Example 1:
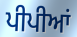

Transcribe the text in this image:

ਪੀਪੀਆਂ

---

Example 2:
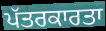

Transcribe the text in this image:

ਪੱਤਰਕਾਰਤਾ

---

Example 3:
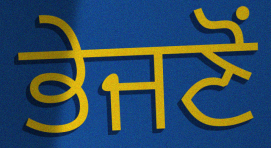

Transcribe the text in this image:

ਭੇਜਣੋਂ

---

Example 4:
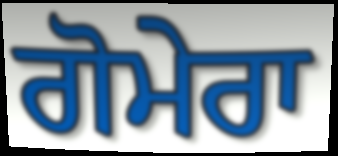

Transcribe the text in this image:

ਗੋਮੇਰਾ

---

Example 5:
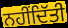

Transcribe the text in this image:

ਨਹੀਂਦਿੱਤੀ